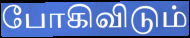
போகிவிடும்